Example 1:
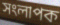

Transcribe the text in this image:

সংলাপক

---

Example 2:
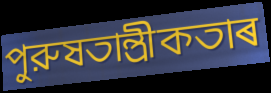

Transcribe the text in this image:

পুৰুষতান্ত্ৰীকতাৰ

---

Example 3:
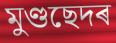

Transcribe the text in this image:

মুণ্ডছেদৰ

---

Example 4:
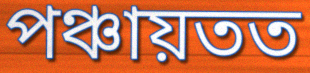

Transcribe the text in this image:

পঞ্চায়তত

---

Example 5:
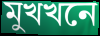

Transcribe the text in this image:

মুখখনে